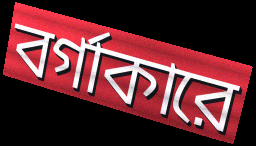
বর্গাকারে